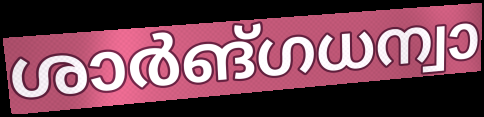
ശാർങ്ഗധന്വാ